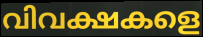
വിവക്ഷകളെ